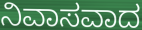
ನಿವಾಸವಾದ